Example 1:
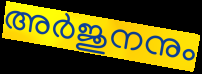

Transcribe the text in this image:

അർജുനനും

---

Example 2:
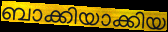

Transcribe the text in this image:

ബാക്കിയാക്കിയ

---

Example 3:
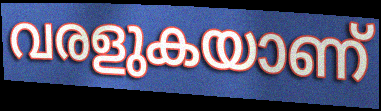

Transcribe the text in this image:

വരളുകയാണ്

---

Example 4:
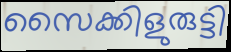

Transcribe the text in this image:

സൈക്കിളുരുട്ടി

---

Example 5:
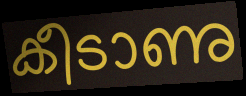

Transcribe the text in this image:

കീടാണു